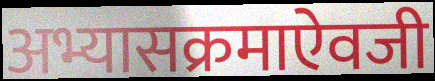
अभ्यासक्रमाऐवजी